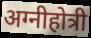
अग्नीहोत्री